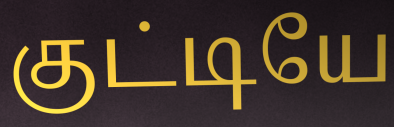
குட்டியே